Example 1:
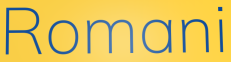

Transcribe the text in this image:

Romani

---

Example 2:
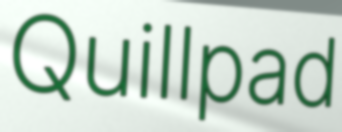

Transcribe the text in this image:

Quillpad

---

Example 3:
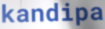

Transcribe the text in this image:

kandipa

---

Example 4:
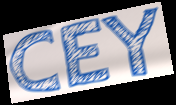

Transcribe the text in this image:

CEY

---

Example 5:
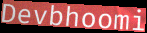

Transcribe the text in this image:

Devbhoomi